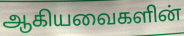
ஆகியவைகளின்